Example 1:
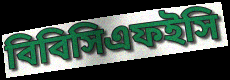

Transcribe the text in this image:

বিবিসিএফইসি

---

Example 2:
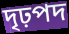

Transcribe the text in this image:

দৃঢ়পদ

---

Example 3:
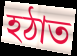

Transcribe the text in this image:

হঠাত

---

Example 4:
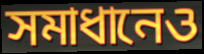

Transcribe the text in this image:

সমাধানেও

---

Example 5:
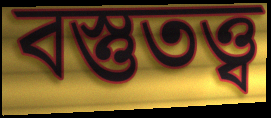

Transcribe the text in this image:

বস্তুতত্ত্ব